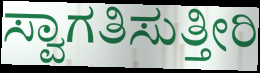
ಸ್ವಾಗತಿಸುತ್ತೀರಿ